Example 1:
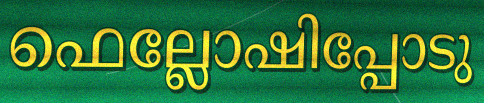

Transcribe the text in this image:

ഫെല്ലോഷിപ്പോടു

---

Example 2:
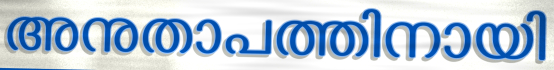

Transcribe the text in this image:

അനുതാപത്തിനായി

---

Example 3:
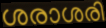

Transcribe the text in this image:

ശരാശരി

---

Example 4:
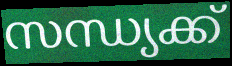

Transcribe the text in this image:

സന്ധ്യക്ക്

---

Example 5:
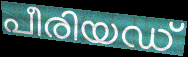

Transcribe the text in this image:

പീരിയഡ്